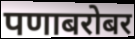
पणाबरोबर